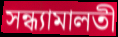
সন্ধ্যামালতী